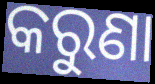
କରୁଣା